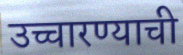
उच्चारण्याची